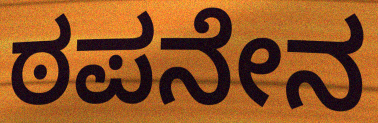
ಠಪನೇನ